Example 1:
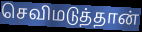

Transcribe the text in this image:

செவிமடுத்தான்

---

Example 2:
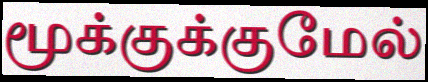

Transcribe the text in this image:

மூக்குக்குமேல்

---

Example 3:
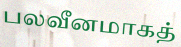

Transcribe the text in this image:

பலவீனமாகத்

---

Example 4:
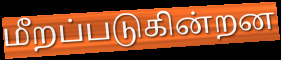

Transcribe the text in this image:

மீறப்படுகின்றன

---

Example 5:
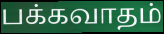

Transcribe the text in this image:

பக்கவாதம்